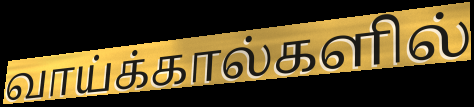
வாய்க்கால்களில்